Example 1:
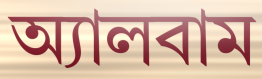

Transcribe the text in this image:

অ্যালবাম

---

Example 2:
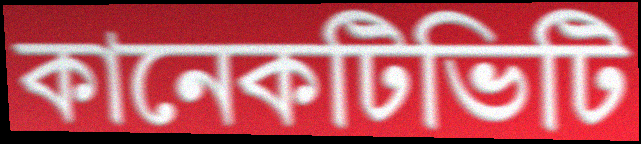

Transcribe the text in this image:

কানেকটিভিটি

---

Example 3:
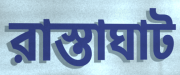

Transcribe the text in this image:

রাস্তাঘাট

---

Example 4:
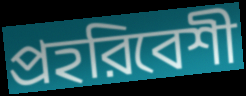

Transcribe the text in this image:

প্রহরিবেশী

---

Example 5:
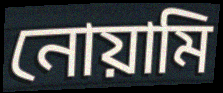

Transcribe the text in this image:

নোয়ামি